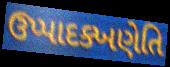
ઉપ્પાદક્ખણેતિ